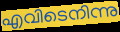
എവിടെനിന്നു